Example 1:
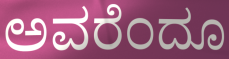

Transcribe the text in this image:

ಅವರೆಂದೂ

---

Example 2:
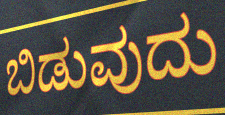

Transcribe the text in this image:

ಬಿಡುವುದು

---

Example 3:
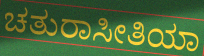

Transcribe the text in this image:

ಚತುರಾಸೀತಿಯಾ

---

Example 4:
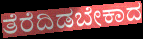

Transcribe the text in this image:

ತೆರೆದಿಡಬೇಕಾದ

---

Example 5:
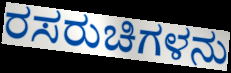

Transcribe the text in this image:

ರಸರುಚಿಗಳನು